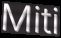
Miti